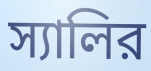
স্যালির